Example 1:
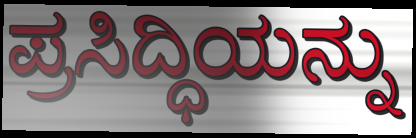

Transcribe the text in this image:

ಪ್ರಸಿದ್ಧಿಯನ್ನು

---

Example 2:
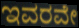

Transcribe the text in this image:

ಇವರವೇ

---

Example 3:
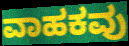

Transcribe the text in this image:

ವಾಹಕವು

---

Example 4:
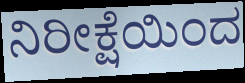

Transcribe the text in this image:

ನಿರೀಕ್ಷೆಯಿಂದ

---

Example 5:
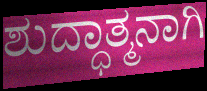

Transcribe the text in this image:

ಶುದ್ಧಾತ್ಮನಾಗಿ